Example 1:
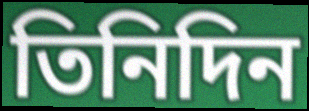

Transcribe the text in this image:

তিনিদিন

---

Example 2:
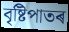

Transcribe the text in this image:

বৃষ্টিপাতৰ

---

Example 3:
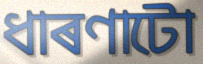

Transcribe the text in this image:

ধাৰণাটো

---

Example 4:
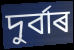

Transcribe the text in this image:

দুৰ্বাৰ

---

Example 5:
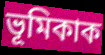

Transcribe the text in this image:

ভূমিকাক